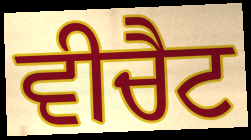
ਵੀਚੈਟ